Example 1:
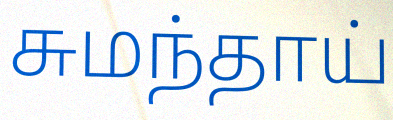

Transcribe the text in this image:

சுமந்தாய்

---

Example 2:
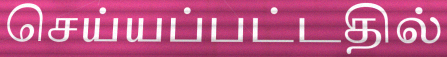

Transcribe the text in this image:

செய்யப்பட்டதில்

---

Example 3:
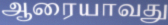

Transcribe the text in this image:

ஆரையாவது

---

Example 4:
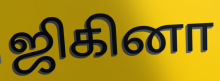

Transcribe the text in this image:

ஜிகினா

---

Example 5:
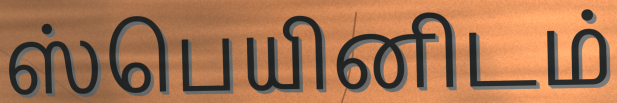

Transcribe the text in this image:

ஸ்பெயினிடம்